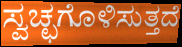
ಸ್ವಚ್ಛಗೊಳಿಸುತ್ತದೆ